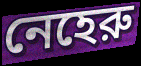
নেহেরু